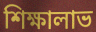
শিক্ষালাভ